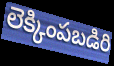
లెక్కింపబడిరి